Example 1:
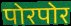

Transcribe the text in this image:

पोरपोर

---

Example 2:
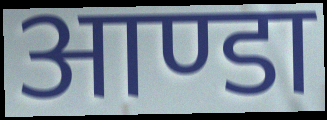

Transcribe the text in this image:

आण्डा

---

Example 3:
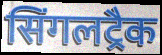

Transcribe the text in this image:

सिंगलट्रैक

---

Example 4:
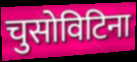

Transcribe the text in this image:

चुसोविटिना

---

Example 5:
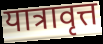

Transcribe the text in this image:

यात्रावृत्त